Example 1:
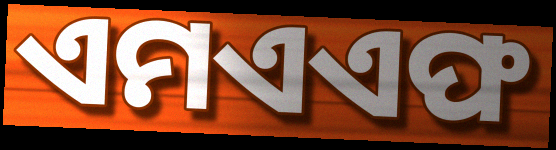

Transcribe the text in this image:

ଏମଏଏଫ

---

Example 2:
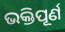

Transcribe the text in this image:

ଭକ୍ତିପୂର୍ଣ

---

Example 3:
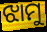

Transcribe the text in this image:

ଝାମୁ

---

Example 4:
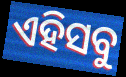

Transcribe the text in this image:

ଏହିସବୁ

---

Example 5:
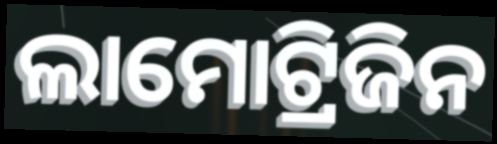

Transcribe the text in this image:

ଲାମୋଟ୍ରିଜିନ